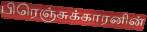
பிரெஞ்சுக்காரனின்